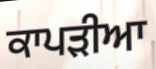
ਕਾਪੜੀਆ